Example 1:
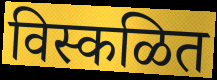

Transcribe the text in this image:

विस्कळित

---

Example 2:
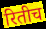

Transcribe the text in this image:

रितीच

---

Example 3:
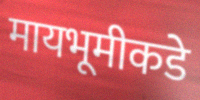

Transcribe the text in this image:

मायभूमीकडे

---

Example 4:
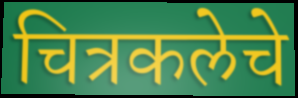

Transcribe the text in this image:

चित्रकलेचे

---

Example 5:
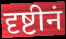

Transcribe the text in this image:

दृष्टीनं